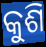
କୁଶି